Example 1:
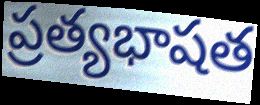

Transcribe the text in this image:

ప్రత్యభాషత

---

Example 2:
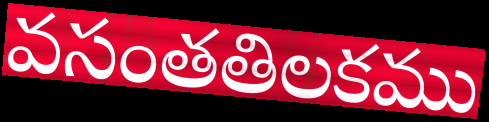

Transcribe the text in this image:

వసంతతిలకము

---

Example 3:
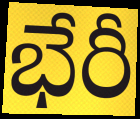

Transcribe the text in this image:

భేరీ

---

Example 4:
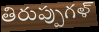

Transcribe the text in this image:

తిరుప్పుగళ్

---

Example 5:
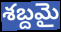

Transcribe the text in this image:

శబ్దమై